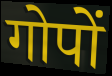
गोपों